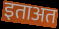
इताअत